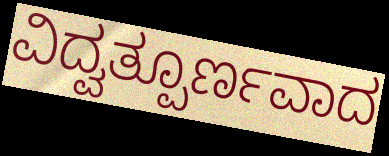
ವಿದ್ವತ್ಪೂರ್ಣವಾದ